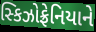
સ્કિઝોફ્રેનિયાને